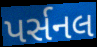
પર્સનલ